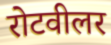
रोटवीलर